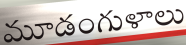
మూడంగుళాలు